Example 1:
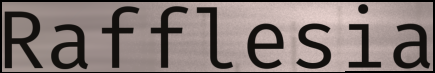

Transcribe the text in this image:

Rafflesia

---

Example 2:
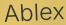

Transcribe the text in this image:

Ablex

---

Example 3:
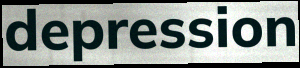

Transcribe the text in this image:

depression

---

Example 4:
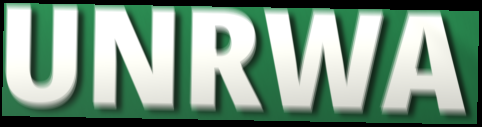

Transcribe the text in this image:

UNRWA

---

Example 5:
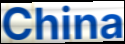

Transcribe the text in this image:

China